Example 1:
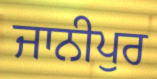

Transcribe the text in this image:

ਜਾਨੀਪੁਰ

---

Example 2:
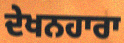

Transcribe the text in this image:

ਦੇਖਨਹਾਰਾ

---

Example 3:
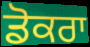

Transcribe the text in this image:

ਡੋਕਰਾ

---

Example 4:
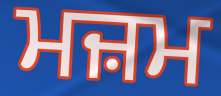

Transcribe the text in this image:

ਮਜ਼ਮ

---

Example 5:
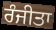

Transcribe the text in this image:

ਰੰਜੀਤਾ